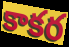
కాకర